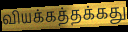
வியக்கத்தக்கது